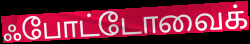
ஃபோட்டோவைக்